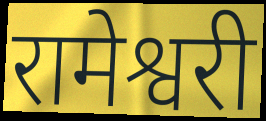
रामेश्वरी